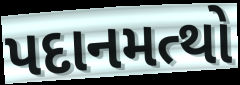
પદાનમત્થો